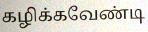
கழிக்கவேண்டி